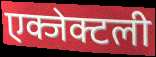
एक्जेक्टली